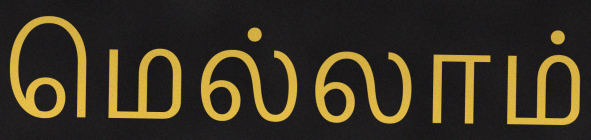
மெல்லாம்